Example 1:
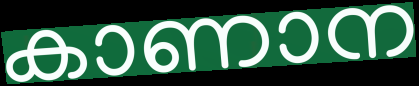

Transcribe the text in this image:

കാണാന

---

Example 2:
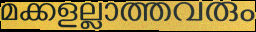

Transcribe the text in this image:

മക്കളല്ലാത്തവരും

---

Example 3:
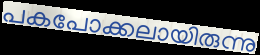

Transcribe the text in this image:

പകപോക്കലായിരുന്നു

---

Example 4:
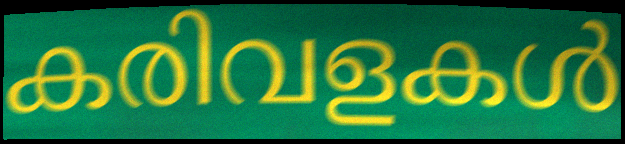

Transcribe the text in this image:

കരിവളകൾ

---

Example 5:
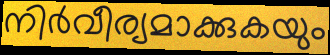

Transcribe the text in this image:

നിർവീര്യമാക്കുകയും